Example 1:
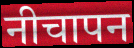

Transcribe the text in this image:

नीचापन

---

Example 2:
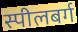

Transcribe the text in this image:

स्पीलबर्ग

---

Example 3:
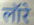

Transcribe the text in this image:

लॉरे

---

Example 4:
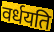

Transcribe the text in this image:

वर्धयति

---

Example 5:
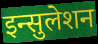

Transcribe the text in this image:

इन्सुलेशन